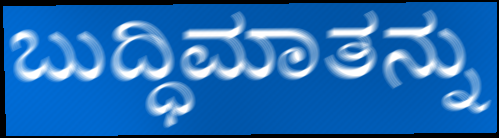
ಬುದ್ಧಿಮಾತನ್ನು